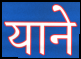
याने